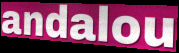
andalou